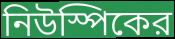
নিউস্পিকের